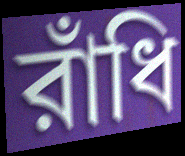
রাঁধি